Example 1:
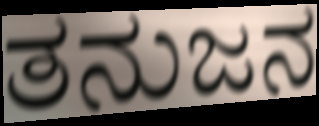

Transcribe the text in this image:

ತನುಜನ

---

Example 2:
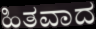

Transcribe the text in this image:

ಹಿತವಾದ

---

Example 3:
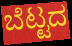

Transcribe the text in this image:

ಬೆಟ್ಟದ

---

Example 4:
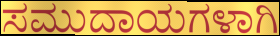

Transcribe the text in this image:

ಸಮುದಾಯಗಳಾಗಿ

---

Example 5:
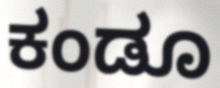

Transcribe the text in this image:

ಕಂಡೂ